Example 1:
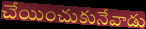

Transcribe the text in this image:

చేయించుకునేవాడు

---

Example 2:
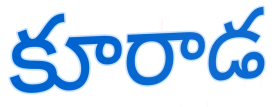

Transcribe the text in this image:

కూరాడ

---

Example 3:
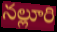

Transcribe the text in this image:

నల్లూరి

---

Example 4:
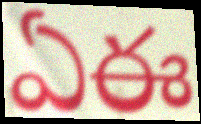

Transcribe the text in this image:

ఏఈ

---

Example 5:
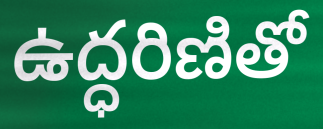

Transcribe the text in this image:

ఉద్ధరిణితో